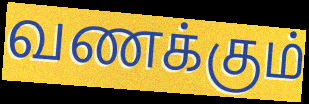
வணக்கும்